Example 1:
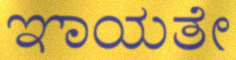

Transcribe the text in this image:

ಞಾಯತೇ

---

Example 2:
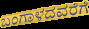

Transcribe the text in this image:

ಬಂಗಾಳದವರೆಗೆ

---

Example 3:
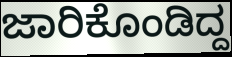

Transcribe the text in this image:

ಜಾರಿಕೊಂಡಿದ್ದ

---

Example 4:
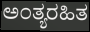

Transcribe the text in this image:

ಅಂತ್ಯರಹಿತ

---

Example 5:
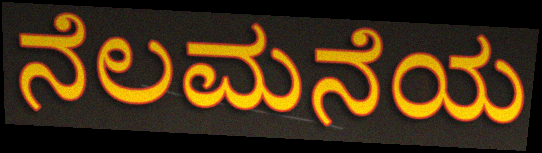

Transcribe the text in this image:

ನೆಲಮನೆಯ